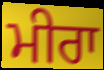
ਮੀਰਾ